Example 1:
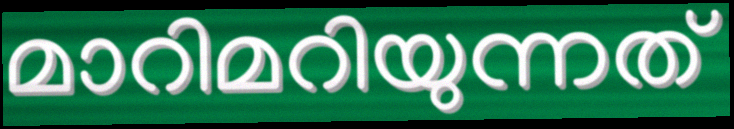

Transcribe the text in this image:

മാറിമറിയുന്നത്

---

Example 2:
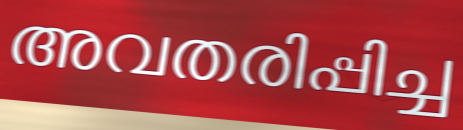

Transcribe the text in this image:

അവതരിപ്പിച്ച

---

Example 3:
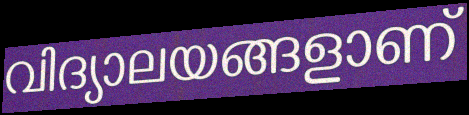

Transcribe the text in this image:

വിദ്യാലയങ്ങളാണ്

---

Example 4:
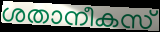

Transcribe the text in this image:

ശതാനീകസ്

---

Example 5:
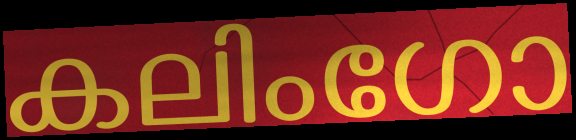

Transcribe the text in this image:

കലിംഗോ